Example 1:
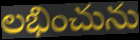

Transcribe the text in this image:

లభించును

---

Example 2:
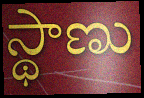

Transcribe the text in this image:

స్థాణు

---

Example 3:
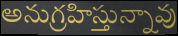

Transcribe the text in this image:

అనుగ్రహిస్తున్నావు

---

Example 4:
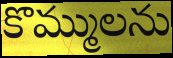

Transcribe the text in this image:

కొమ్ములను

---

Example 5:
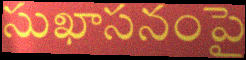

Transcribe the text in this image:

సుఖాసనంపై